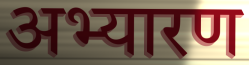
अभ्यारण